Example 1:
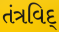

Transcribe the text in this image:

તંત્રવિદ્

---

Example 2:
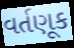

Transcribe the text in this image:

વર્તણૂક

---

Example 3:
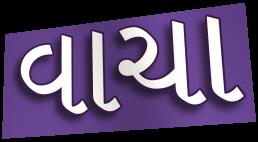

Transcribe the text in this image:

વાચા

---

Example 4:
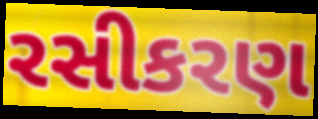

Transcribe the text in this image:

રસીકરણ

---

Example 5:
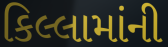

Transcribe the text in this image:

કિલ્લામાંની